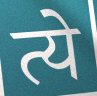
त्ये